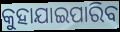
କୁହାଯାଇପାରିବ